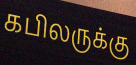
கபிலருக்கு